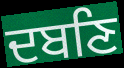
ਦਬਣਿ